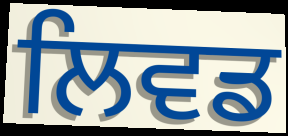
ਲਿਵਡ